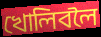
খোলিবলৈ